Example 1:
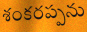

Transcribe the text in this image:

శంకరప్పను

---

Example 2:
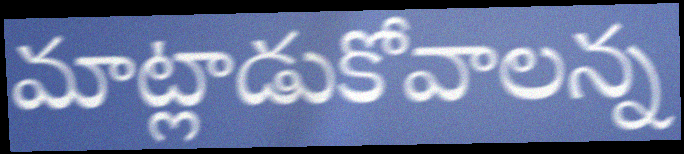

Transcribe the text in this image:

మాట్లాడుకోవాలన్న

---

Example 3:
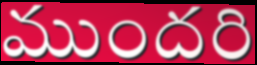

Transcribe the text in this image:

ముందరి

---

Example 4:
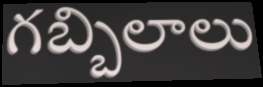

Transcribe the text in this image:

గబ్బిలాలు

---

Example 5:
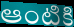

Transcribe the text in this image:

ఆంటికి